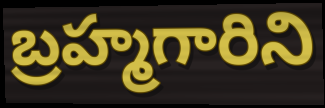
బ్రహ్మగారిని